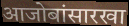
आजोबांसारखा